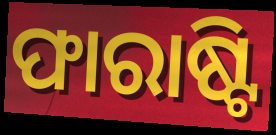
ଫାରାଷ୍ଟି